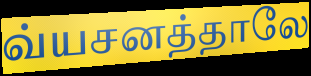
வ்யசனத்தாலே